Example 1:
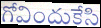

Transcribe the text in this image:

గోవిందుకేసి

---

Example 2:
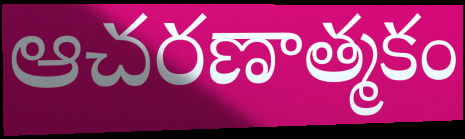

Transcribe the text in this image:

ఆచరణాత్మకం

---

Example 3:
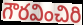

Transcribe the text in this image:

గౌరవించిరి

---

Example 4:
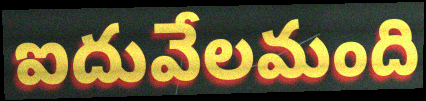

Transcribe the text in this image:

ఐదువేలమంది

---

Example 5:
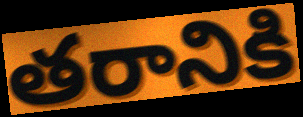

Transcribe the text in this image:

తరానికి